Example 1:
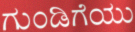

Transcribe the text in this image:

ಗುಂಡಿಗೆಯು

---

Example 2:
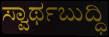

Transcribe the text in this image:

ಸ್ವಾರ್ಥಬುದ್ಧಿ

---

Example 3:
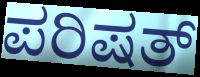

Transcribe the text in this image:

ಪರಿಷತ್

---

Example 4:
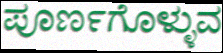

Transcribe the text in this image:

ಪೂರ್ಣಗೊಳ್ಳುವ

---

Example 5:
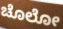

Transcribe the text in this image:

ಚೊಲೋ